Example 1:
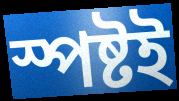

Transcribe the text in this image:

স্পষ্টই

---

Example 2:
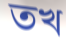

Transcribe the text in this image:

তখ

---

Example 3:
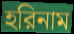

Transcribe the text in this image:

হরিনাম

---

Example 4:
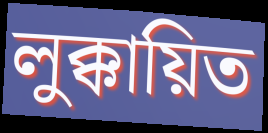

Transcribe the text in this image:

লুক্কায়িত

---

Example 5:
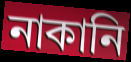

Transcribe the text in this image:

নাকানি